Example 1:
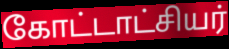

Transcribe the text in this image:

கோட்டாட்சியர்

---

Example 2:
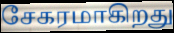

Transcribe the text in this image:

சேகரமாகிறது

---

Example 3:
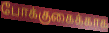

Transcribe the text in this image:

போக்குகைக்காக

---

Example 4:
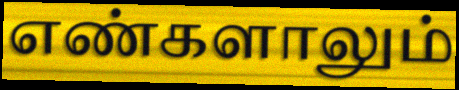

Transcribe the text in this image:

எண்களாலும்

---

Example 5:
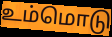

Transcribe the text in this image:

உம்மொடு